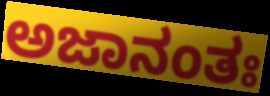
ಅಜಾನಂತಃ